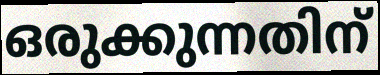
ഒരുക്കുന്നതിന്